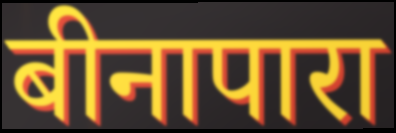
बीनापारा